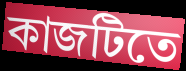
কাজটিতে